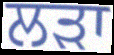
ਲੜਾ